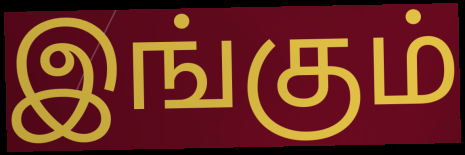
இங்கும்